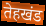
तेहखंड